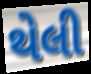
થેલી